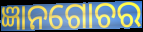
ଜ୍ଞାନଗୋଚର